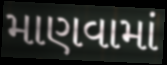
માણવામાં